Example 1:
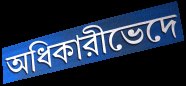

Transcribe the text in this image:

অধিকারীভেদে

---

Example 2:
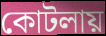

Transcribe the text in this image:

কোটলায়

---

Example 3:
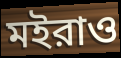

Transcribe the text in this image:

মইরাও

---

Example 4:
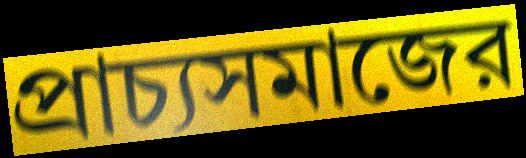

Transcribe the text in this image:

প্রাচ্যসমাজের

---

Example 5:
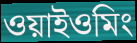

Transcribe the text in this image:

ওয়াইওমিং